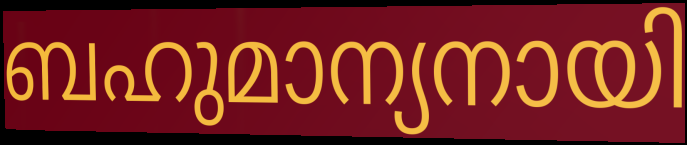
ബഹുമാന്യനായി